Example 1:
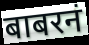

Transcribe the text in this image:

बाबरनं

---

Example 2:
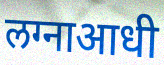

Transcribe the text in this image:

लग्नाआधी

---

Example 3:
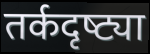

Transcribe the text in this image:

तर्कदृष्ट्या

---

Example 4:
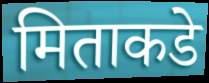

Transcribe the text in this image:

मिताकडे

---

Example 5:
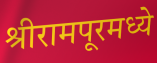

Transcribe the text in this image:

श्रीरामपूरमध्ये